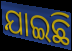
ଯାଇଛି